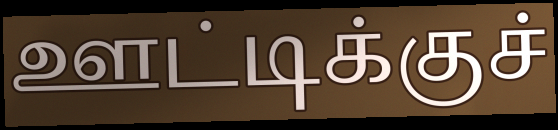
ஊட்டிக்குச்